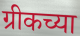
ग्रीकच्या